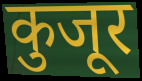
कुजूर